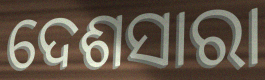
ଦେଶସାରା